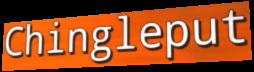
Chingleput